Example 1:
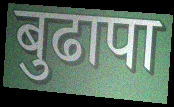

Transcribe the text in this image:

बुढापा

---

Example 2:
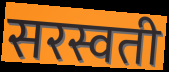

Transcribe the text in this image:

सरस्‍वती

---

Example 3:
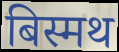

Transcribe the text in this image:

बिस्मथ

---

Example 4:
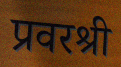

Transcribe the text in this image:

प्रवरश्री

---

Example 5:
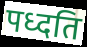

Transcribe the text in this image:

पध्दति